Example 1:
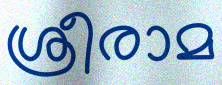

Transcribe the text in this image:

ശ്രീരാമ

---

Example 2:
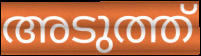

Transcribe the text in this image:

അടുത്ത്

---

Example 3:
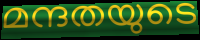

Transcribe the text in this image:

മന്ദതയുടെ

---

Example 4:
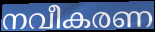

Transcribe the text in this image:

നവീകരണ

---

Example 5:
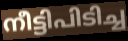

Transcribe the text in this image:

നീട്ടിപിടിച്ച